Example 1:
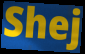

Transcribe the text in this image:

Shej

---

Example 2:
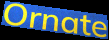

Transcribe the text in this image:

Ornate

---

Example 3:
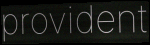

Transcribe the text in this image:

provident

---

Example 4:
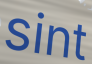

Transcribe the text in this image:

sint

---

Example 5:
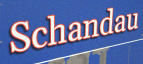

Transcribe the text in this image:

Schandau